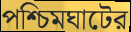
পশ্চিমঘাটের